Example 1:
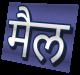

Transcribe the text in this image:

मैल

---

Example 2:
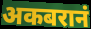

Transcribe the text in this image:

अकबरानं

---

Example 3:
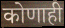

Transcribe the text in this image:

कोणाही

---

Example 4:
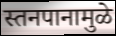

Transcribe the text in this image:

स्तनपानामुळे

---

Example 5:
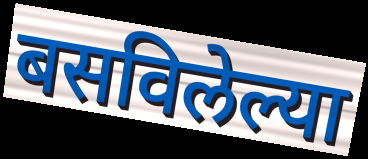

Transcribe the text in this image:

बसविलेल्या